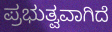
ಪ್ರಭುತ್ವವಾಗಿದೆ